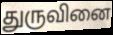
துருவினை